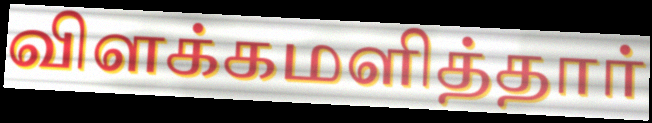
விளக்கமளித்தார்